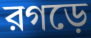
রগড়ে